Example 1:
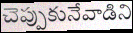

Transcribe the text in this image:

చెప్పుకునేవాడిని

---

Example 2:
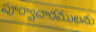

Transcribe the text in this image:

పూర్వాచారములను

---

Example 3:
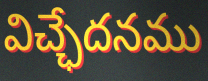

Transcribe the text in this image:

విచ్ఛేదనము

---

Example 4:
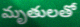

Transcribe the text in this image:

మృతులతో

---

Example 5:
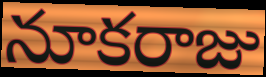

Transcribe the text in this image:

నూకరాజు